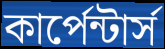
কার্পেন্টার্স